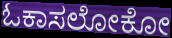
ಓಕಾಸಲೋಕೋ